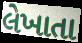
લેખાતા